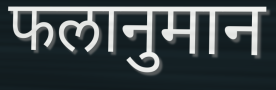
फलानुमान